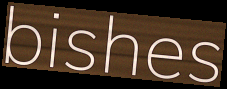
bishes